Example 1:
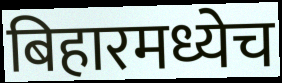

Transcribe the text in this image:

बिहारमध्येच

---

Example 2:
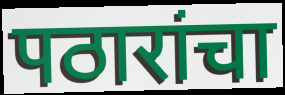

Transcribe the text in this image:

पठारांचा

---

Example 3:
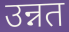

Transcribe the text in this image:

उन्नत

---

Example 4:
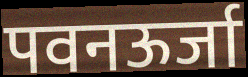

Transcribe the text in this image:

पवनऊर्जा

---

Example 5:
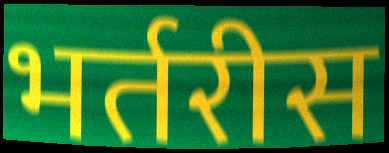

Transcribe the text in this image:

भर्तरीस